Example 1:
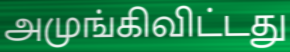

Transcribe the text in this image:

அமுங்கிவிட்டது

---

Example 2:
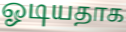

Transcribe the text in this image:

ஓடியதாக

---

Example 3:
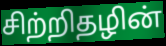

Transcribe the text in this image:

சிற்றிதழின்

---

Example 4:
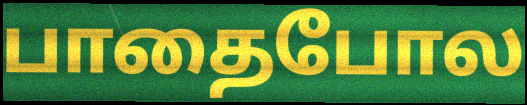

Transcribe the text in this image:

பாதைபோல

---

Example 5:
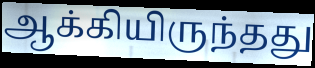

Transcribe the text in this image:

ஆக்கியிருந்தது